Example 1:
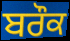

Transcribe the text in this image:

ਬਰੌਕ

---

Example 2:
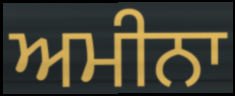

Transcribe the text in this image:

ਅਮੀਨਾ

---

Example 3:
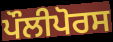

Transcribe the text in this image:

ਪੌਲੀਪੋਰਸ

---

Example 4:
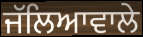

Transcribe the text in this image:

ਜੱਲਿਆਵਾਲੇ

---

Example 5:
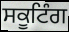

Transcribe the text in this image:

ਸਕੂਟਿੰਗ